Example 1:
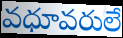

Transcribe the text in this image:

వధూవరులే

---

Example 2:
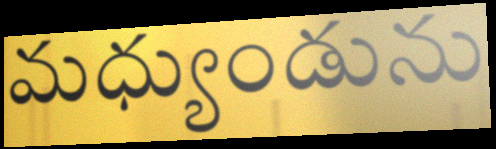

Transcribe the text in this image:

మధ్యుండును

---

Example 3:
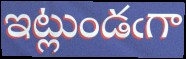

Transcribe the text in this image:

ఇట్లుండఁగా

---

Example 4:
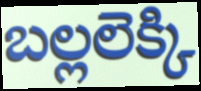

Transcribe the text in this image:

బల్లలెక్కి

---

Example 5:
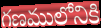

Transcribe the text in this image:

గణములోనికి